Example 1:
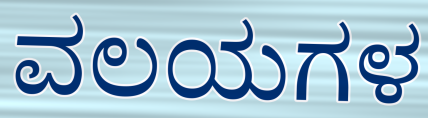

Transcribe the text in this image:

ವಲಯಗಳ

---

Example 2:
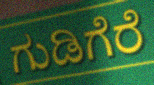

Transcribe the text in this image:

ಗುಡಿಗೆರೆ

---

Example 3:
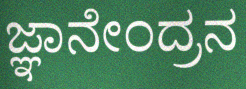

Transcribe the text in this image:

ಜ್ಞಾನೇಂದ್ರನ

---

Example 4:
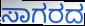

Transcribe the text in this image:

ಸಾಗರದ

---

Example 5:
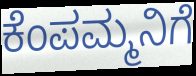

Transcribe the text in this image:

ಕೆಂಪಮ್ಮನಿಗೆ